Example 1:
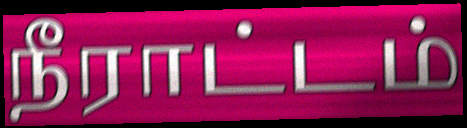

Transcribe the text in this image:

நீராட்டம்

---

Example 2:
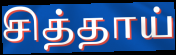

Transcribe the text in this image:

சித்தாய்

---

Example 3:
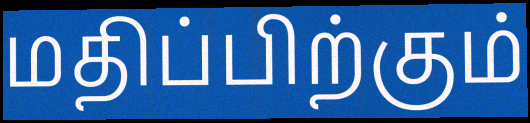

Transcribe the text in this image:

மதிப்பிற்கும்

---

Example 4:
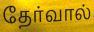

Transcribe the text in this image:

தேர்வால்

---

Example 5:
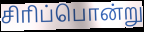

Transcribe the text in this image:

சிரிப்பொன்று